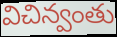
విచిన్వంతు